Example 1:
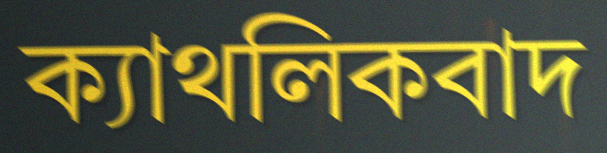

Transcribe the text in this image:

ক্যাথলিকবাদ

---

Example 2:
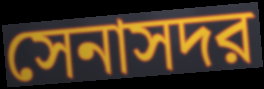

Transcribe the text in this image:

সেনাসদর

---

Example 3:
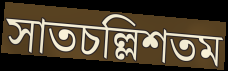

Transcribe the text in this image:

সাতচল্লিশতম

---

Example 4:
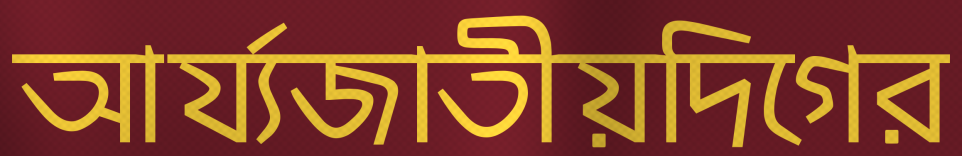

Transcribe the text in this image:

আর্য্যজাতীয়দিগের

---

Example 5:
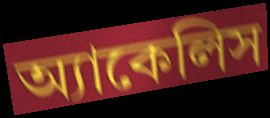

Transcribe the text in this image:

অ্যাকেলিস